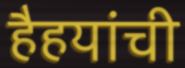
हैहयांची